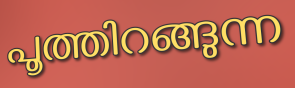
പൂത്തിറങ്ങുന്ന